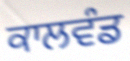
ਕਾਲਵੰਡ